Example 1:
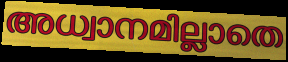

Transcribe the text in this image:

അധ്വാനമില്ലാതെ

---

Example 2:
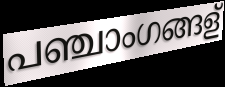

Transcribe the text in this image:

പഞ്ചാംഗങ്ങള്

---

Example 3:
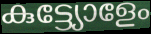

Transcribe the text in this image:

കുട്ട്യോളേം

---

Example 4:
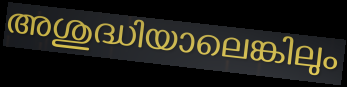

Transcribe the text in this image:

അശുദ്ധിയാലെങ്കിലും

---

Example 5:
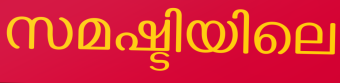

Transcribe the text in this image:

സമഷ്ടിയിലെ